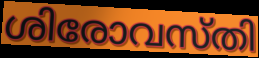
ശിരോവസ്തി